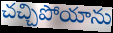
చచ్చిపోయాను